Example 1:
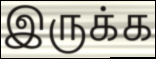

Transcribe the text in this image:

இருக்க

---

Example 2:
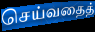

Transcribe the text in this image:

செய்வதைத்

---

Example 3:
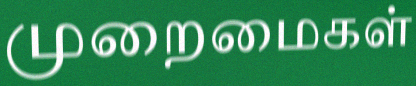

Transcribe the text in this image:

முறைமைகள்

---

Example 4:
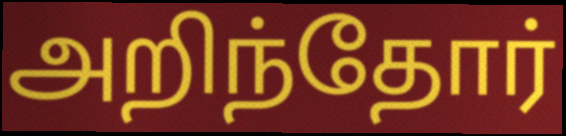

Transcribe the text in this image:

அறிந்தோர்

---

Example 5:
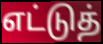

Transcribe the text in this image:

எட்டுத்